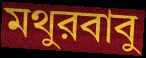
মথুরবাবু